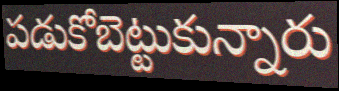
పడుకోబెట్టుకున్నారు